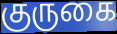
குருகை